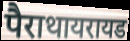
पैराथायरायड